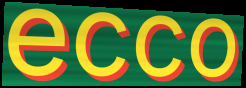
ecco